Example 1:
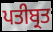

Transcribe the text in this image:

ਪਤੀਬ੍ਰਤ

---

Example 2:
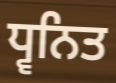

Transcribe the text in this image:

ਧ੍ਵਨਿਤ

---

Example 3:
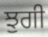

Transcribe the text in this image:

ਝੁਗੀ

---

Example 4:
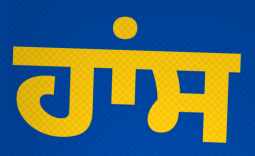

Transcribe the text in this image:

ਹਾਂਸ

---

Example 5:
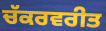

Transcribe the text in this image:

ਚੱਕਰਵਰੀਤ